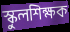
স্কুলশিক্ষক